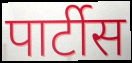
पार्टीस